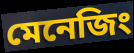
মেনেজিং